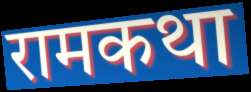
रामकथा